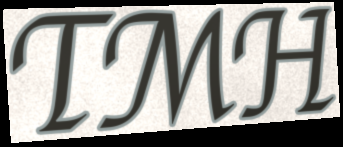
TMH